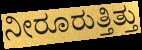
ನೀರೂರುತ್ತಿತ್ತು